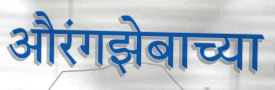
औरंगझेबाच्या